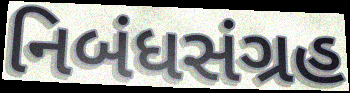
નિબંધસંગ્રહ